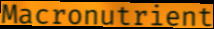
Macronutrient